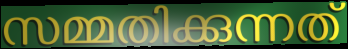
സമ്മതിക്കുന്നത്